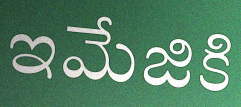
ఇమేజికి